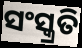
ସଂସ୍କ୍ରତି